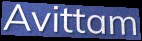
Avittam